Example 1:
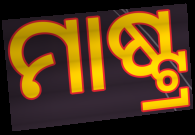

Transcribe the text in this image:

ମାଷ୍ଟ୍ର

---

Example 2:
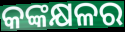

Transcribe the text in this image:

କଙ୍କକ୍ଷଳର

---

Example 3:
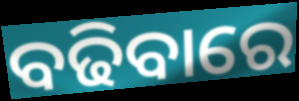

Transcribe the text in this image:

ବଢିବାରେ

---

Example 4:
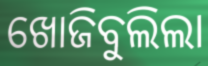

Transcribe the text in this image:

ଖୋଜିବୁଲିଲା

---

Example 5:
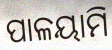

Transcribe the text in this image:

ପାଳୟାମି